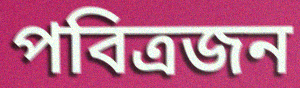
পবিত্রজন